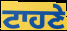
ਟਾਹਣੇ